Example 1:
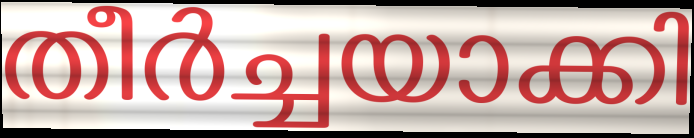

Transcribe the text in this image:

തീർച്ചയാക്കി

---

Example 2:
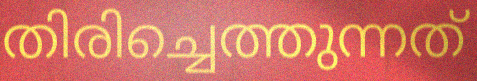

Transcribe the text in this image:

തിരിച്ചെത്തുന്നത്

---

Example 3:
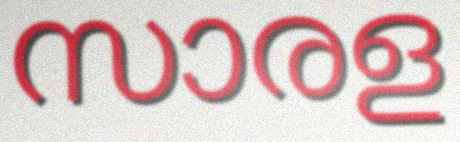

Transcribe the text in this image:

സാരള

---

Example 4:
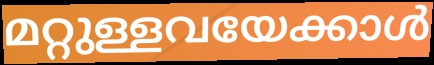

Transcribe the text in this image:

മറ്റുള്ളവയേക്കാൾ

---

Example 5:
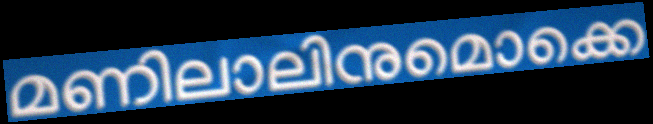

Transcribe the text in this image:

മണിലാലിനുമൊക്കെ